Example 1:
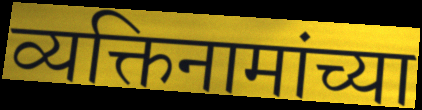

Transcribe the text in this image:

व्यक्तिनामांच्या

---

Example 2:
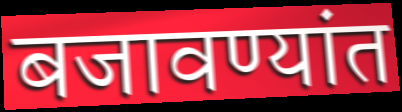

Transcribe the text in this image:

बजावण्यांत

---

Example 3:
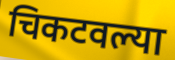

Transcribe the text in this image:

चिकटवल्या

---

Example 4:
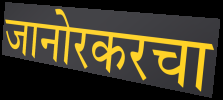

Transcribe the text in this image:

जानोरकरचा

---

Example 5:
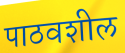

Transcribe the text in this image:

पाठवशील